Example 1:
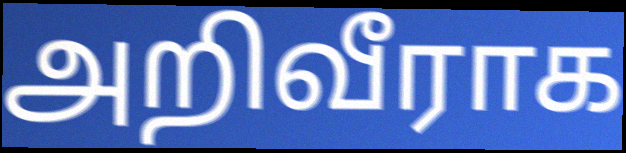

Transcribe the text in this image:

அறிவீராக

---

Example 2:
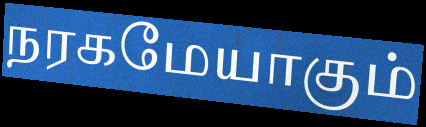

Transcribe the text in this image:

நரகமேயாகும்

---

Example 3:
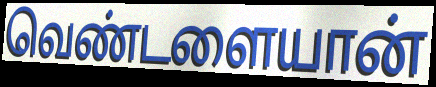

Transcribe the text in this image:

வெண்டளையான்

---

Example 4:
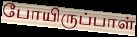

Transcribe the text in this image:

போயிருப்பாள்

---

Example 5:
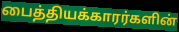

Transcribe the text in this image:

பைத்தியக்காரர்களின்